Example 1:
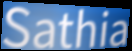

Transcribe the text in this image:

Sathia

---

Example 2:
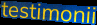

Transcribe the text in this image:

testimonii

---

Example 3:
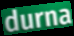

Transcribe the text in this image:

durna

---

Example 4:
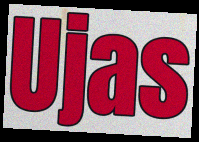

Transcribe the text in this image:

Ujas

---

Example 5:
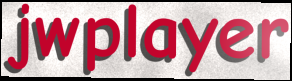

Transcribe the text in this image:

jwplayer